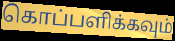
கொப்பளிக்கவும்